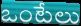
ఒంటేలు